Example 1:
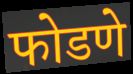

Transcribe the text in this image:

फोडणे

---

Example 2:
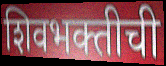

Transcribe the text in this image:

शिवभक्तीची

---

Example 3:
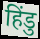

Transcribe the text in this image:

हिंडु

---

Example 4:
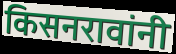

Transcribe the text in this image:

किसनरावांनी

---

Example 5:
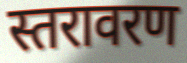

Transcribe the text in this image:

स्तरावरण